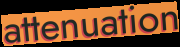
attenuation